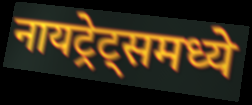
नायट्रेट्समध्ये